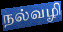
நல்வழி